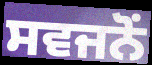
ਸਵਜਨੋਂ